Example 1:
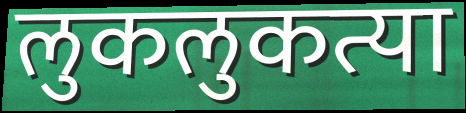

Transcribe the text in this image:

लुकलुकत्या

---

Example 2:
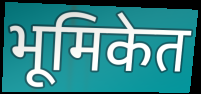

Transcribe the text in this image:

भूमिकेत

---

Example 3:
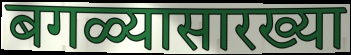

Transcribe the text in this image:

बगळ्यासारख्या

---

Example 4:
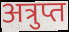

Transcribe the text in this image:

अत्रुप्त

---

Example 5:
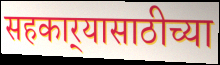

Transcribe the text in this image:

सहकार्यासाठीच्या